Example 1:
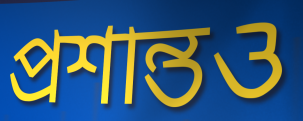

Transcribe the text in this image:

প্রশান্তও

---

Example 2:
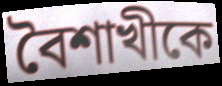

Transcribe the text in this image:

বৈশাখীকে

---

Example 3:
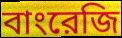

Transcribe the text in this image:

বাংরেজি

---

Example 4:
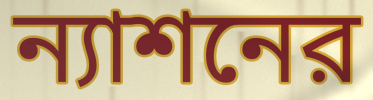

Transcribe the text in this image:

ন্যাশনের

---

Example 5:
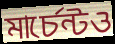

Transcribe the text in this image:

মার্চেন্টও